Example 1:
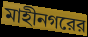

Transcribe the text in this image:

মাহীনগরের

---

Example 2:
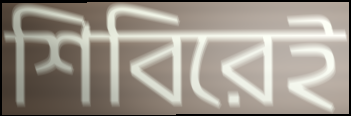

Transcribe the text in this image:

শিবিরেই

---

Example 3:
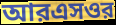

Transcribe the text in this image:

আরএসওর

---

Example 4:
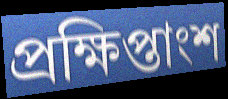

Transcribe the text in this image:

প্রক্ষিপ্তাংশ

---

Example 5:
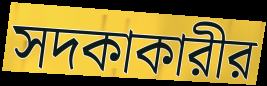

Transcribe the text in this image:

সদকাকারীর